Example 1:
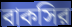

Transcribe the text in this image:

বাকসির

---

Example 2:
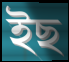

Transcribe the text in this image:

ইছ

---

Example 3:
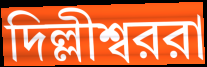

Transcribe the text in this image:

দিল্লীশ্বররা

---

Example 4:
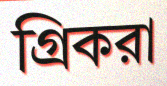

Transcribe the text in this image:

গ্রিকরা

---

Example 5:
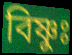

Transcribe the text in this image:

বিষ্ণুঃ